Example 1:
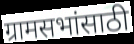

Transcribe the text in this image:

ग्रामसभांसाठी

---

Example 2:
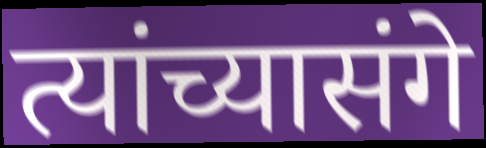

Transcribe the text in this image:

त्यांच्यासंगे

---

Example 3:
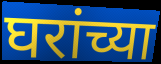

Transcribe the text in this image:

घरांच्या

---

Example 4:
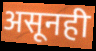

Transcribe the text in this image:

असूनही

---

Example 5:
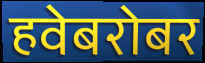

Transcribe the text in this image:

हवेबरोबर